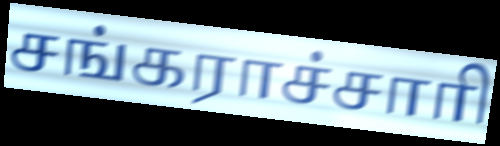
சங்கராச்சாரி